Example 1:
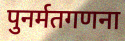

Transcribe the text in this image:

पुनर्मतगणना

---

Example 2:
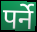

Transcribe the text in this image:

पर्ने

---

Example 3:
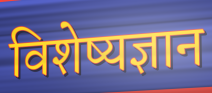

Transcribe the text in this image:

विशेष्यज्ञान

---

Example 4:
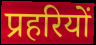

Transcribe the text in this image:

प्रहरियों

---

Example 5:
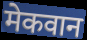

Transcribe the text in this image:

मेकवान